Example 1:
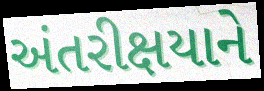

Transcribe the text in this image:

અંતરીક્ષયાને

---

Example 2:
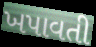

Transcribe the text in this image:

ખપાવતી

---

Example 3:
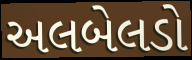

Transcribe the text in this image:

અલબેલડો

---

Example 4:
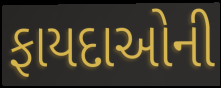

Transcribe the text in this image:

ફાયદાઓની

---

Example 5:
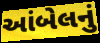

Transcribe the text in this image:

આંબેલનું